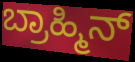
ಬ್ರಾಹ್ಮಿನ್